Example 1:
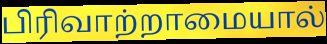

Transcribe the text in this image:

பிரிவாற்றாமையால்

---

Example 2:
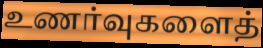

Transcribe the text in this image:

உணர்வுகளைத்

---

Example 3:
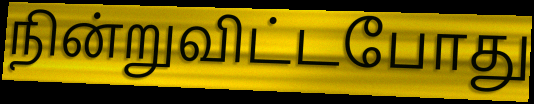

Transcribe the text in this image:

நின்றுவிட்டபோது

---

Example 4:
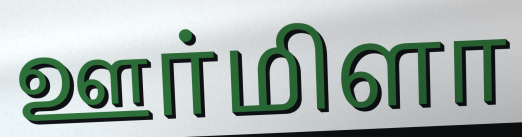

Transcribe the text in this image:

ஊர்மிளா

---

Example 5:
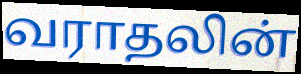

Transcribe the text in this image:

வராதலின்